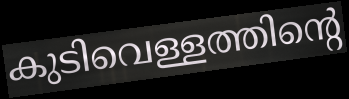
കുടിവെള്ളത്തിന്റെ